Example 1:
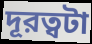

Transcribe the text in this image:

দূরত্বটা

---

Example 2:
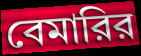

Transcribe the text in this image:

বেমারির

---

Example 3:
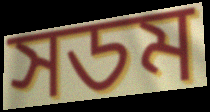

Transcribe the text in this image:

সডম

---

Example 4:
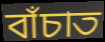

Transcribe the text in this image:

বাঁচাত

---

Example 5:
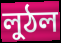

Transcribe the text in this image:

লুঠল